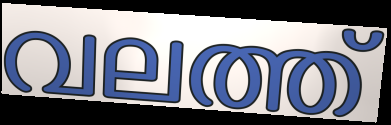
വലത്ത്